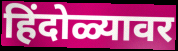
हिंदोळ्यावर